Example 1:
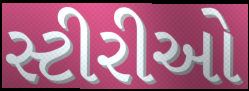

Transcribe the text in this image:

સ્ટીરીઓ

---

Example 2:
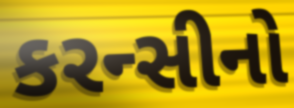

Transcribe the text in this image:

કરન્સીનો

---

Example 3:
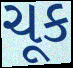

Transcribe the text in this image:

ચૂક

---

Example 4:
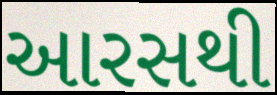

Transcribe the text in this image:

આરસથી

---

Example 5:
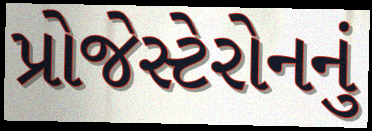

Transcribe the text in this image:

પ્રોજેસ્ટેરોનનું